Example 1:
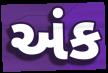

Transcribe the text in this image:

અંક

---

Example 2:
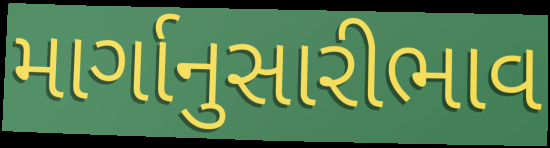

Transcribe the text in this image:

માર્ગાનુસારીભાવ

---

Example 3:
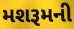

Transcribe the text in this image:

મશરૂમની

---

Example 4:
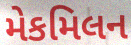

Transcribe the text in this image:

મેકમિલન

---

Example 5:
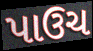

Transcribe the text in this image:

પાઉચ